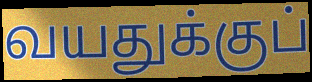
வயதுக்குப்